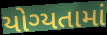
યોગ્યતામાં